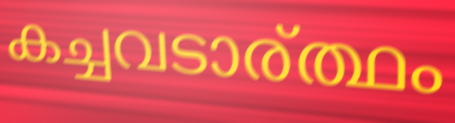
കച്ചവടാര്ത്ഥം